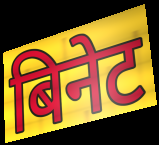
बिनेट